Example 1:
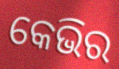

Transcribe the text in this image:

କେଭିର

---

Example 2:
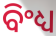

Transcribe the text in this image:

ବିଂଧ୍ୟ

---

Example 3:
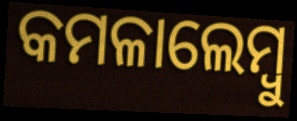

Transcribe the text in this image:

କମଳାଲେମ୍ୱୁ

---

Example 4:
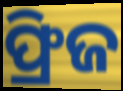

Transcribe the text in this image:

ଫ୍ରିଜ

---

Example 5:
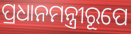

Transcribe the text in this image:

ପ୍ରଧାନମନ୍ତ୍ରୀରୂପେ